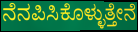
ನೆನಪಿಸಿಕೊಳ್ಳುತ್ತೇನೆ